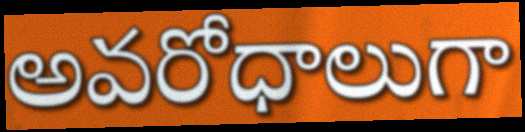
అవరోధాలుగా